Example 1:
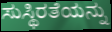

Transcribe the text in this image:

ಸುಸ್ಥಿರತೆಯನ್ನು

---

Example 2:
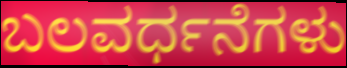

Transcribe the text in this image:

ಬಲವರ್ಧನೆಗಳು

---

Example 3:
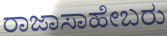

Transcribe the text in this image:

ರಾಜಾಸಾಹೇಬರು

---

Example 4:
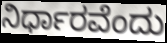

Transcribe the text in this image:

ನಿರ್ಧಾರವೆಂದು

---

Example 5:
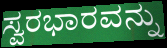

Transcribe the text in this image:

ಸ್ವರಭಾರವನ್ನು